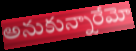
అనుకున్నారేమో